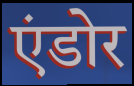
एंडोर